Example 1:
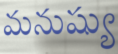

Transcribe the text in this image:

మనుష్యు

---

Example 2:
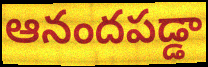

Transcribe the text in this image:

ఆనందపడ్డా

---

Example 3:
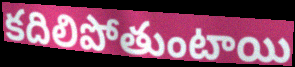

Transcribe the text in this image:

కదిలిపోతుంటాయి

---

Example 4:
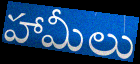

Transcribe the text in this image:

హామీలు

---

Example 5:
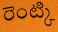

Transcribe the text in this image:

రెంట్కి